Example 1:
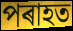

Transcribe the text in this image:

পৰাহত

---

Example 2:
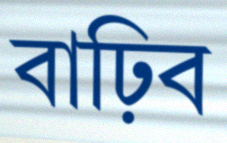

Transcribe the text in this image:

বাঢ়িব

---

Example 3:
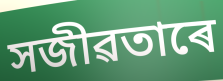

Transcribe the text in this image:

সজীৱতাৰে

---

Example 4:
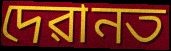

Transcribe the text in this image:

দেৱানত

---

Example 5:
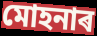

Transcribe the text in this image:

মোহনাৰ